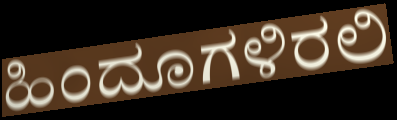
ಹಿಂದೂಗಳಿರಲಿ